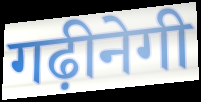
गढ़ीनेगी